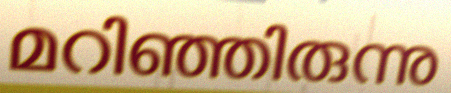
മറിഞ്ഞിരുന്നു